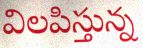
విలపిస్తున్న